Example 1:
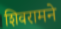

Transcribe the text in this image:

शिवरामने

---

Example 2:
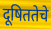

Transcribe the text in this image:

दूषिततेचे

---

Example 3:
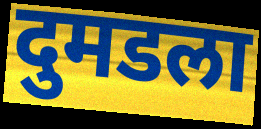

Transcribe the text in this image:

दुमडला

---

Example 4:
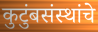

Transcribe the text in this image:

कुटुंबसंस्थांचे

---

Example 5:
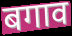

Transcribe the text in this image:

बगाव